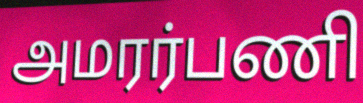
அமரர்பணி